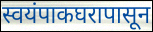
स्वयंपाकघरापासून